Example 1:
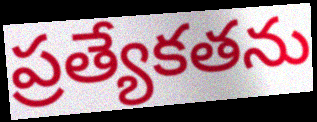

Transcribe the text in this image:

ప్రత్యేకతను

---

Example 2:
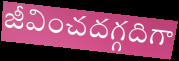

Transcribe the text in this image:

జీవించదగ్గదిగా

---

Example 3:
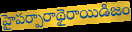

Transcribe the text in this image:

హైపర్పారాథైరాయిడిజం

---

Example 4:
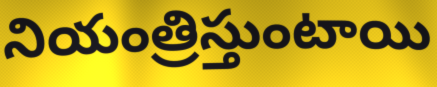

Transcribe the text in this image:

నియంత్రిస్తుంటాయి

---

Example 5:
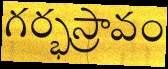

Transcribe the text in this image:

గర్భస్రావం